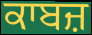
ਕਾਬਜ਼